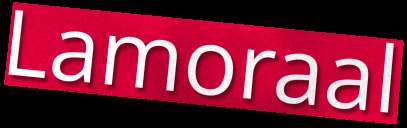
Lamoraal